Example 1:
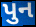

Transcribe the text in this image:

પુન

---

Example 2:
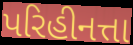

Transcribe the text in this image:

પરિહીનત્તા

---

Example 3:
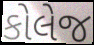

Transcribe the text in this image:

કોલેજ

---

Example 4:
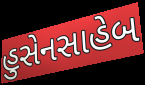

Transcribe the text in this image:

હુસેનસાહેબ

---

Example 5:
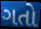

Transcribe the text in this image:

ગતો